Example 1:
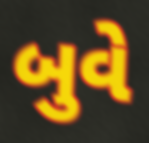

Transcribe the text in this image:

બુવે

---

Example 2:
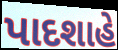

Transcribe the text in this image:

પાદશાહે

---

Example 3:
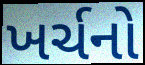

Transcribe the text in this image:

ખર્ચનો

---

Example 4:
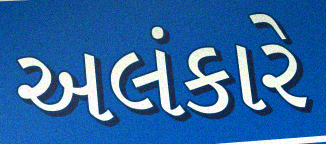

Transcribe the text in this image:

અલંકારે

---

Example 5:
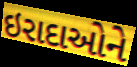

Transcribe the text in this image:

ઇરાદાઓને